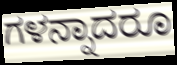
ಗಳನ್ನಾದರೂ